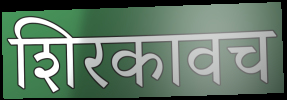
शिरकावच